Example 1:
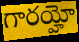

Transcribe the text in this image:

గారయ్హో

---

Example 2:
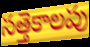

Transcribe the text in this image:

సత్తెకాలపు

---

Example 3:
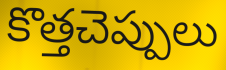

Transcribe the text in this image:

కొత్తచెప్పులు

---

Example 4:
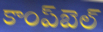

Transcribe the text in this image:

కాంప్‌బెల్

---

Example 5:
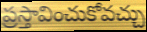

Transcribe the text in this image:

ప్రస్తావించుకోవచ్చు